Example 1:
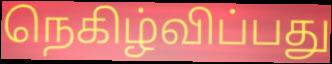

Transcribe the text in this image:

நெகிழ்விப்பது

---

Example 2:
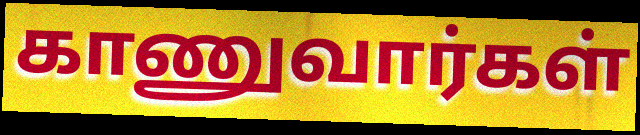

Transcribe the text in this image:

காணுவார்கள்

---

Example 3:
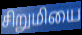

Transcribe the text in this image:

சிறுமியை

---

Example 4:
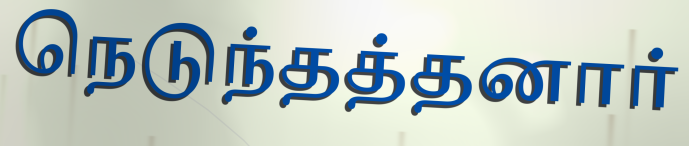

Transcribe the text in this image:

நெடுந்தத்தனார்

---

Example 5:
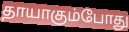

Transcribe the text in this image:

தாயாகும்போது